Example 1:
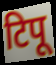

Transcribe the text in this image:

टिपू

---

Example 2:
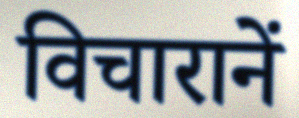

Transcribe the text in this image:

विचारानें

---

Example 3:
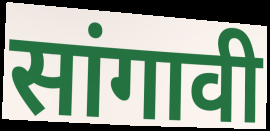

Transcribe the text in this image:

सांगावी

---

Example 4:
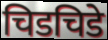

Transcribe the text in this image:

चिडचिडे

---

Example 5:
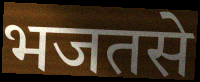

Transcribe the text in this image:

भजतसे